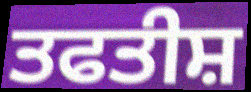
ਤਫਤੀਸ਼